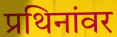
प्रथिनांवर